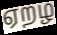
ஏறழ